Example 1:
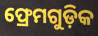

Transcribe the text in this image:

ଫ୍ରେମଗୁଡ଼ିକ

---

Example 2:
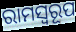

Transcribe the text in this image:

ରାମସ୍ୱରୂପ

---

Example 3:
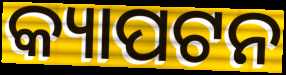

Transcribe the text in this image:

କ୍ୟାପଟନ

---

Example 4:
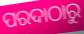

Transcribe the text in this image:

ପରଦାଠାରୁ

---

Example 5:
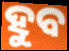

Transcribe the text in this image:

ହୁବ